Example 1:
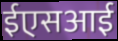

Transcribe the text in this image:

ईएसआई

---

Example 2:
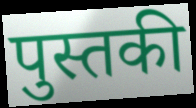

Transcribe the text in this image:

पुस्तकी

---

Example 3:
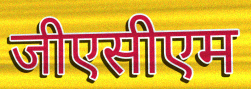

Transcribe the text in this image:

जीएसीएम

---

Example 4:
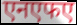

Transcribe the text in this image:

एनएफए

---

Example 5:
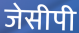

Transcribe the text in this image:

जेसीपी